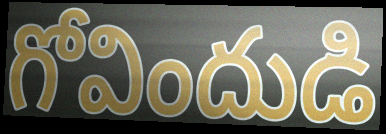
గోవిందుడి